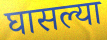
घासल्या